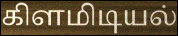
கிளமிடியல்